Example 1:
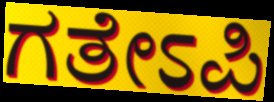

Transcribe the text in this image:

ಗತೇಽಪಿ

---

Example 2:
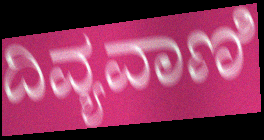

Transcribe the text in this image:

ದಿವ್ಯವಾಣಿ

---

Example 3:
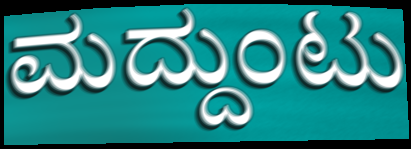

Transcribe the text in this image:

ಮದ್ದುಂಟು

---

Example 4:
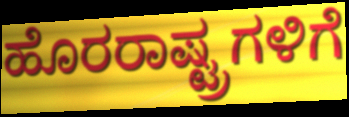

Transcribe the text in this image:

ಹೊರರಾಷ್ಟ್ರಗಳಿಗೆ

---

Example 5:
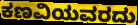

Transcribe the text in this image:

ಕಣವಿಯವರದು